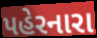
પહેરનારા